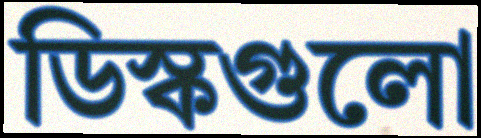
ডিস্কগুলো